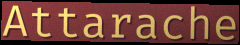
Attarache